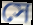
সে